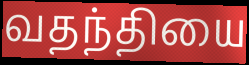
வதந்தியை